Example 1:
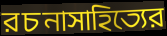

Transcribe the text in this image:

রচনাসাহিত্যের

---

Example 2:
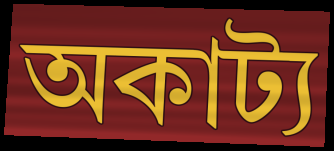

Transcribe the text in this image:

অকাট্য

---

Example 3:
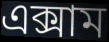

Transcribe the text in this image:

এক্সাম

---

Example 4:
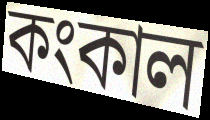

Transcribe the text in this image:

কংকাল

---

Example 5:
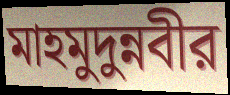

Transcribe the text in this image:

মাহমুদুন্নবীর